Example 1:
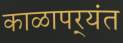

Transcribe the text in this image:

काळापर्यंत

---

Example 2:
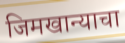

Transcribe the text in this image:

जिमखान्याचा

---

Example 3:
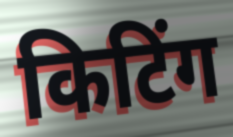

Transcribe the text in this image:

किटिंग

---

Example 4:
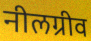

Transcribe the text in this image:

नीलग्रीव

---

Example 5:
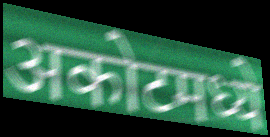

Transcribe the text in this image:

अकोटमध्ये